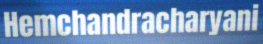
Hemchandracharyani